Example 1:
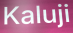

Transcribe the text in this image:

Kaluji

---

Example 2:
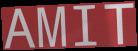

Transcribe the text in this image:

AMIT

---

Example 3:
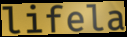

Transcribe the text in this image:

lifela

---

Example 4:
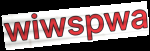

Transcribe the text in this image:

wiwspwa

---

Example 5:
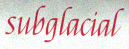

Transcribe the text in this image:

subglacial